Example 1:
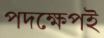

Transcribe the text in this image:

পদক্ষেপই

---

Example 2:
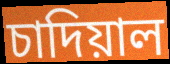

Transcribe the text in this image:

চাদিয়াল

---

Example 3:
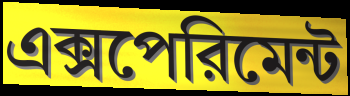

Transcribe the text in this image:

এক্সপেরিমেন্ট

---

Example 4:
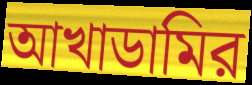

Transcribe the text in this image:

আখাডামির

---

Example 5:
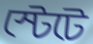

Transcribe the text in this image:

স্টেটে